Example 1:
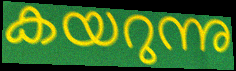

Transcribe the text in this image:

കയറുന്നു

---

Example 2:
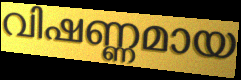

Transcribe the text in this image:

വിഷണ്ണമായ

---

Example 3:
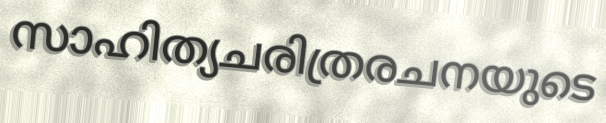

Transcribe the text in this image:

സാഹിത്യചരിത്രരചനയുടെ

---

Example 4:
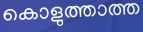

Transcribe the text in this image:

കൊളുത്താത്ത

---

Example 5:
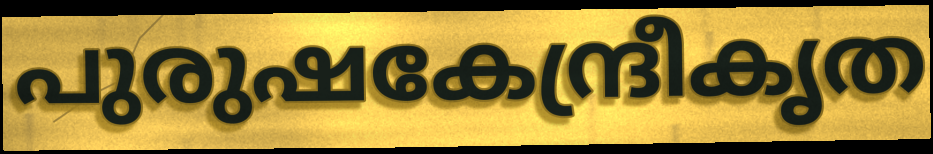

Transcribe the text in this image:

പുരുഷകേന്ദ്രീകൃത